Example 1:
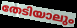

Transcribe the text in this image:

തേടിയാലും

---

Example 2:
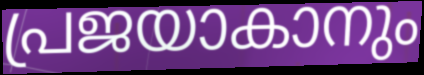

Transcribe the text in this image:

പ്രജയാകാനും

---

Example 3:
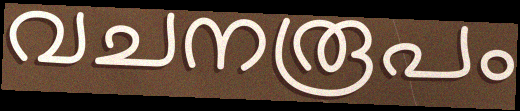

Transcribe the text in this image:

വചനരൂപം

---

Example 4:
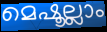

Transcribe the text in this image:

മെഷൂല്ലാം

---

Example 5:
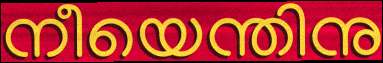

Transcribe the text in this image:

നീയെന്തിനു